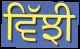
ਵਿੱਝੀ